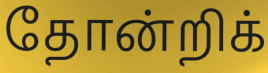
தோன்றிக்